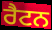
ਰੈਟਨ